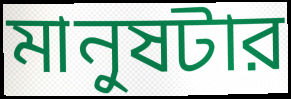
মানুষটার